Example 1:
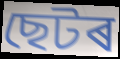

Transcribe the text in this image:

ছেটৰ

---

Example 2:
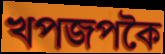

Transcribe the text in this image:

খপজপকৈ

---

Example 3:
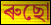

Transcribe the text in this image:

ৰুছো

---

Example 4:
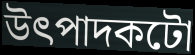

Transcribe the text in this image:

উৎপাদকটো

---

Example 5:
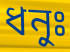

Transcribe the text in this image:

ধনুঃ